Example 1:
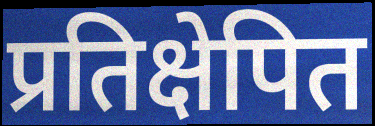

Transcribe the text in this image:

प्रतिक्षेपित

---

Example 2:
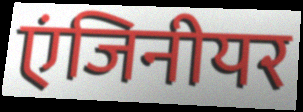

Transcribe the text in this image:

एंजिनीयर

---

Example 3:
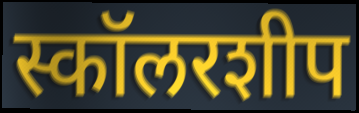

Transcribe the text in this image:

स्कॉलरशीप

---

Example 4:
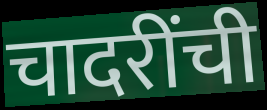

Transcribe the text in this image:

चादरींची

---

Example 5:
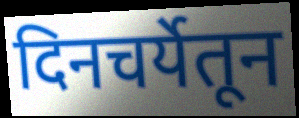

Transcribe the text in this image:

दिनचर्येतून